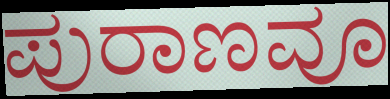
ಪುರಾಣವೂ